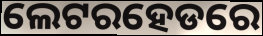
ଲେଟରହେଡରେ